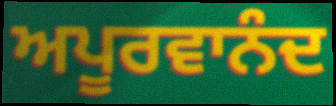
ਅਪੂਰਵਾਨੰਦ